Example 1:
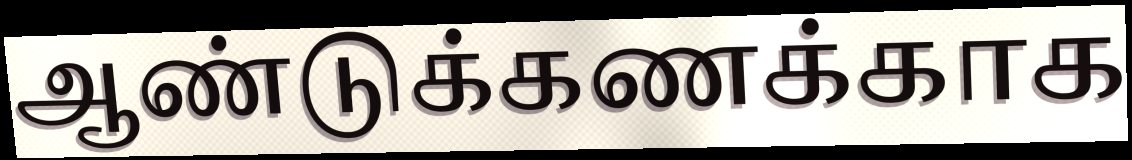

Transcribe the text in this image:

ஆண்டுக்கணக்காக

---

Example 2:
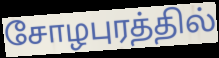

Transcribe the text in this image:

சோழபுரத்தில்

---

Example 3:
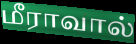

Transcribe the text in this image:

மீராவால்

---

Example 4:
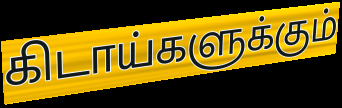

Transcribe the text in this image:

கிடாய்களுக்கும்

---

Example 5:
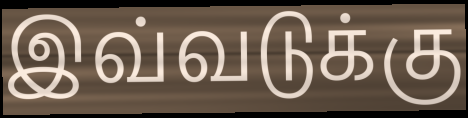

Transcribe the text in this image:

இவ்வடுக்கு